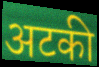
अटकी